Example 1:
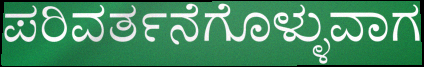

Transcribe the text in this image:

ಪರಿವರ್ತನೆಗೊಳ್ಳುವಾಗ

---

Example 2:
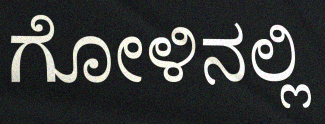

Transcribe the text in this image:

ಗೋಳಿನಲ್ಲಿ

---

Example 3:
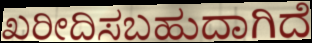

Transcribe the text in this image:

ಖರೀದಿಸಬಹುದಾಗಿದೆ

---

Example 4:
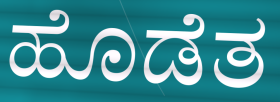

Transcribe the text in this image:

ಹೊಡೆತ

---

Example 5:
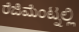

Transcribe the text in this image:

ರೆಜಿಮೆಂಟ್ನಲ್ಲಿ